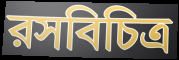
রসবিচিত্র